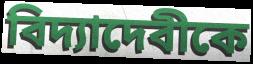
বিদ্যাদেবীকে